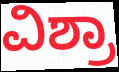
ವಿಶ್ರಾ